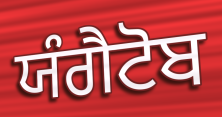
ਯੰਗੈਟੋਬ